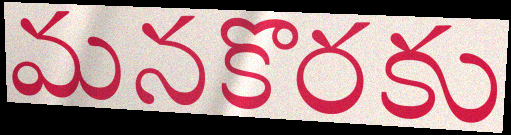
మనకొరకు